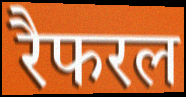
रैफरल